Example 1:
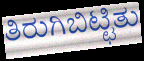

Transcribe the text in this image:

ತಿರುಗಿಬಿಟ್ಟಿತು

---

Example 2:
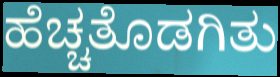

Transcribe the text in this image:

ಹೆಚ್ಚತೊಡಗಿತು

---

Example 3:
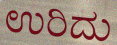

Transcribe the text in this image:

ಉರಿದು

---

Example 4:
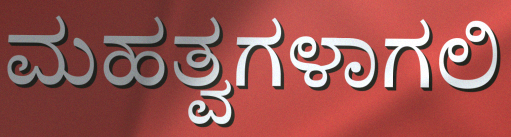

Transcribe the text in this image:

ಮಹತ್ವಗಳಾಗಲಿ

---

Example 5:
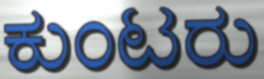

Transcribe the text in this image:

ಕುಂಟರು